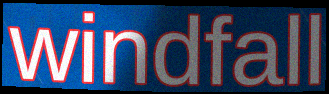
windfall